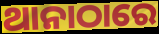
ଥାନାଠାରେ